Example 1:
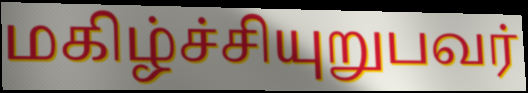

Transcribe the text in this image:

மகிழ்ச்சியுறுபவர்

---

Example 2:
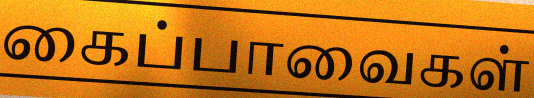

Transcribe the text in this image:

கைப்பாவைகள்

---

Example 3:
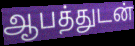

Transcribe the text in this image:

ஆபத்துடன்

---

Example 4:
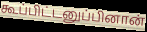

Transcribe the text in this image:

கூப்பிட்டனுப்பினான்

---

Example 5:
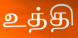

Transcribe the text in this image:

உத்தி